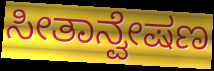
ಸೀತಾನ್ವೇಷಣ